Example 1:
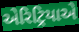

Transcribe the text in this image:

એરિટ્રિયાએ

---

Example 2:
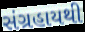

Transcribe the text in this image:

સંગ્રહાયથી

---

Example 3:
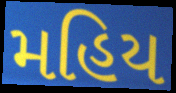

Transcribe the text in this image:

મહિય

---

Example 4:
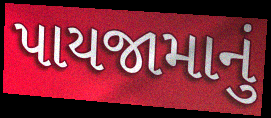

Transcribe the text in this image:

પાયજામાનું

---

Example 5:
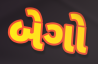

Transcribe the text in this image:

બેગો